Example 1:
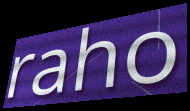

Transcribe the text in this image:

raho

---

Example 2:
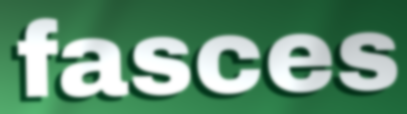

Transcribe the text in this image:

fasces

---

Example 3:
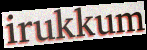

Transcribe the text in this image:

irukkum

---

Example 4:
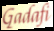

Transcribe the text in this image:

Gadafi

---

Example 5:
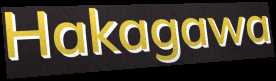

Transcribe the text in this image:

Hakagawa